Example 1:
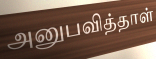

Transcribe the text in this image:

அனுபவித்தாள்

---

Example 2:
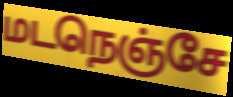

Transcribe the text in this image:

மடநெஞ்சே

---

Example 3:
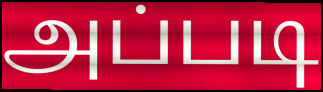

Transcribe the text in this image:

அப்படி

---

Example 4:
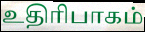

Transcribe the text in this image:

உதிரிபாகம்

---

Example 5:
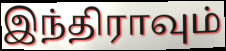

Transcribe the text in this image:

இந்திராவும்